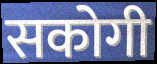
सकोगी